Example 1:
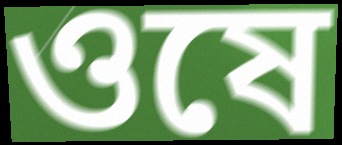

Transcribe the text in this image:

ওষে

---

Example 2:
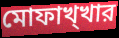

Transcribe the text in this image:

মোফাখ্খার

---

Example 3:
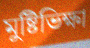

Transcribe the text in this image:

মুষ্টিভিক্ষা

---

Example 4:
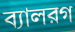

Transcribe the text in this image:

ব্যালরগ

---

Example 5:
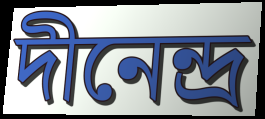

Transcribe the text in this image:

দীনেন্দ্র